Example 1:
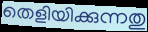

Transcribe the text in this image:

തെളിയിക്കുന്നതു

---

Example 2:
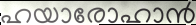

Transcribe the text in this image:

ഹയാരോഹാൻ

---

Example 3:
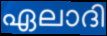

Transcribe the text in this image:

ഏലാദി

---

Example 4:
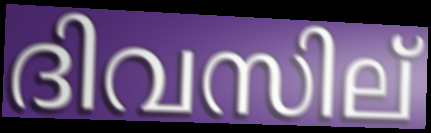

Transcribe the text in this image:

ദിവസില്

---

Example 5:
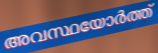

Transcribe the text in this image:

അവസ്ഥയോർത്ത്